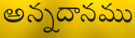
అన్నదానము